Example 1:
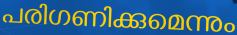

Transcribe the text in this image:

പരിഗണിക്കുമെന്നും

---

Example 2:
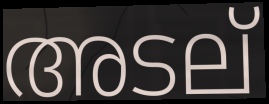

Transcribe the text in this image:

അടല്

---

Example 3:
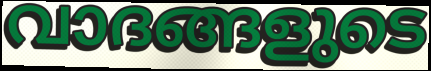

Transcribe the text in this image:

വാദങ്ങളുടെ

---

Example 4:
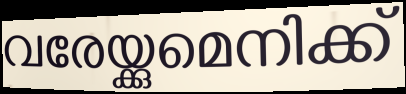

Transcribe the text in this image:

വരേയ്ക്കുമെനിക്ക്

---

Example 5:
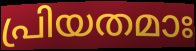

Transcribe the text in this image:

പ്രിയതമാഃ